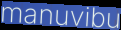
manuvibu